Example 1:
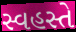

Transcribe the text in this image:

સ્વહસ્તે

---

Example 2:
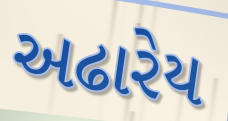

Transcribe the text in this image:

અઢારેય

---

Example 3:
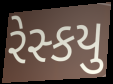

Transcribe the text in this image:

રેસ્કયુ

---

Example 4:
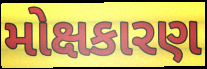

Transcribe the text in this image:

મોક્ષકારણ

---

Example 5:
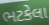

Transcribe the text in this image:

ભટકેલા